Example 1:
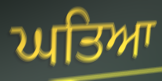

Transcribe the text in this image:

ਘਤਿਆ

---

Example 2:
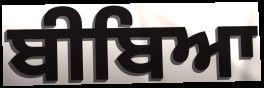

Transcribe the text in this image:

ਬੀਬਿਆ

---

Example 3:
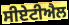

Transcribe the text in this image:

ਸੀਏਟੀਐਲ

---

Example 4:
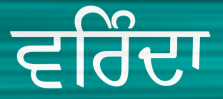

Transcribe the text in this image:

ਵਰਿੰਦਾ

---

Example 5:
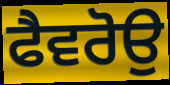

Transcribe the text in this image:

ਫੈਵਰੋਉ